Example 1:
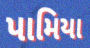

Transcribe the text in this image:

પામિયા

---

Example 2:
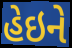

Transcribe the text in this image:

હેઇને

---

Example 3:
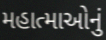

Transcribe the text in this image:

મહાત્માઓનું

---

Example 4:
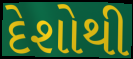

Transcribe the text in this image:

દેશોથી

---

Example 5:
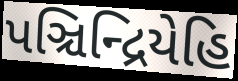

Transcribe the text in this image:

પઞ્ચિન્દ્રિયેહિ